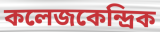
কলেজকেন্দ্রিক